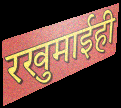
रखुमाईही